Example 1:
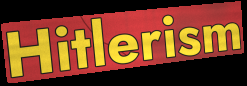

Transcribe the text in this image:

Hitlerism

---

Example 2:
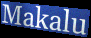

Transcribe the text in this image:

Makalu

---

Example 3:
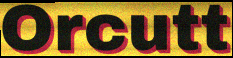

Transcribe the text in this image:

Orcutt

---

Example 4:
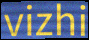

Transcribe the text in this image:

vizhi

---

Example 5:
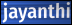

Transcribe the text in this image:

jayanthi